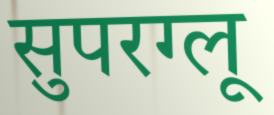
सुपरग्लू